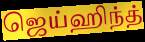
ஜெய்ஹிந்த்